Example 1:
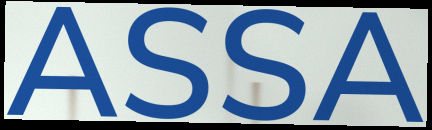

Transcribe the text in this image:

ASSA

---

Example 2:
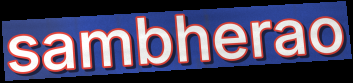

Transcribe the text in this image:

sambherao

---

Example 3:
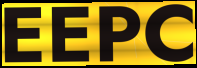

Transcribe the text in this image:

EEPC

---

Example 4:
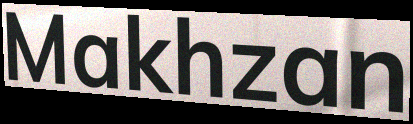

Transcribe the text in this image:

Makhzan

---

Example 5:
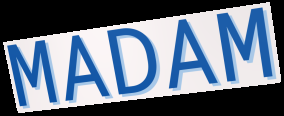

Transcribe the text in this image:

MADAM